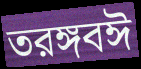
তরঙ্গবঈ